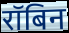
रॉबिन